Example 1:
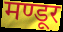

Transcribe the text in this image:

मण्डूर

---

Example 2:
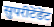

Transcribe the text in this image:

सुपरीटेंडेंट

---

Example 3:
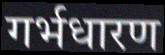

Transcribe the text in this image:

गर्भधारण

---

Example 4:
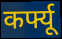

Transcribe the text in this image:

कर्फ्यू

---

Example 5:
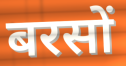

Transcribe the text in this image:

बरसों